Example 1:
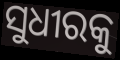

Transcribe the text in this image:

ସୁଧୀରକୁ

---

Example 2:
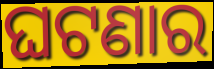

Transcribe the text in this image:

ଘଟଣାର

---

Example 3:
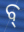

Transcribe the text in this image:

ବ୍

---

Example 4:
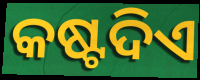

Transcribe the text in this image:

କଷ୍ଟଦିଏ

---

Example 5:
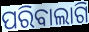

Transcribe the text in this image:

ପରିବାଲାଗି